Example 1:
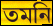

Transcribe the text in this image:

তমনি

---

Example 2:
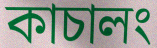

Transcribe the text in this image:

কাচালং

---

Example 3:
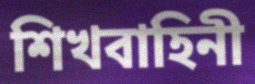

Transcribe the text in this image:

শিখবাহিনী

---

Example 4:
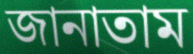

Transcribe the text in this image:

জানাতাম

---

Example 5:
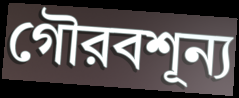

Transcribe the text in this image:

গৌরবশূন্য